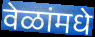
वेळांमधे